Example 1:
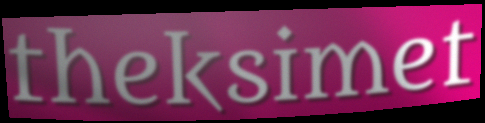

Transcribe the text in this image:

theksimet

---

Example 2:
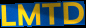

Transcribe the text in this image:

LMTD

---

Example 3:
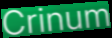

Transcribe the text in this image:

Crinum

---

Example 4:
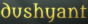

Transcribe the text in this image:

dushyant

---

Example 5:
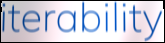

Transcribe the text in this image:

iterability